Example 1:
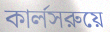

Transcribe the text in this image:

কার্লসরুয়ে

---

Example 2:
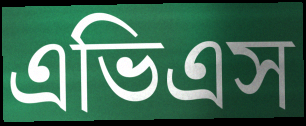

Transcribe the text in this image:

এভিএস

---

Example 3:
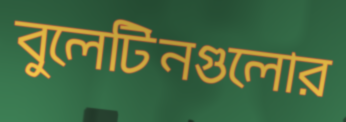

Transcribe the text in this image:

বুলেটিনগুলোর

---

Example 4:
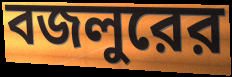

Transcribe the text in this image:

বজলুরের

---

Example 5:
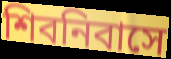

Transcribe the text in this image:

শিবনিবাসে